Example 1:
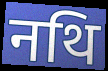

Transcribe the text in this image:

नथि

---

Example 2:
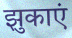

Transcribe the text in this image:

झुकाएं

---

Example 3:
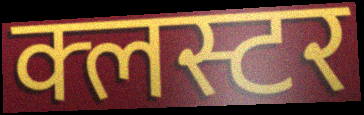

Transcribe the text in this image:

क्‍लस्‍टर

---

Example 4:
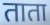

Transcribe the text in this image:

ताता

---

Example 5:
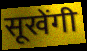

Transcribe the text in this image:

सूखेंगी